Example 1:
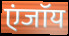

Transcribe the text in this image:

एंजॉय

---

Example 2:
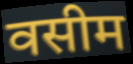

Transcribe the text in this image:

वसीम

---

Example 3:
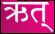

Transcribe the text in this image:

ऋत्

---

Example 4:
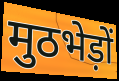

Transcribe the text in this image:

मुठभेड़ों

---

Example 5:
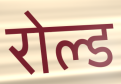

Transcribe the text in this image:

रोल्ड